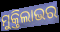
ମୁକ୍ତିଲାଭର